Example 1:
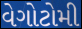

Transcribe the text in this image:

વેગોટોમી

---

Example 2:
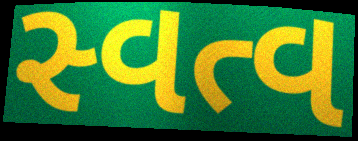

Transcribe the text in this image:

સ્વત્વ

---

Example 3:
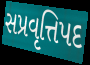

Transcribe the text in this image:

સપ્રવૃત્તિપદ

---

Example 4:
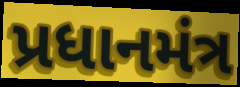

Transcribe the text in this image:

પ્રધાનમંત્ર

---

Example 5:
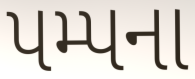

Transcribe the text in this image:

પમ્પના